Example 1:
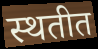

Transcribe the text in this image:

स्थतीत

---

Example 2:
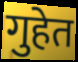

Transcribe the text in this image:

गुहेत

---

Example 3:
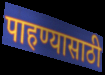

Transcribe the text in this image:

पाहण्यासाठी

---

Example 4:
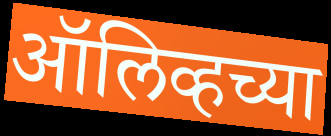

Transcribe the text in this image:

ऑलिव्हच्या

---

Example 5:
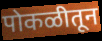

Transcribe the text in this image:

पोकळीतून